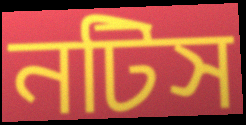
নটিস